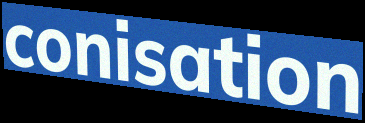
conisation